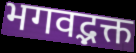
भगवद्भक्त